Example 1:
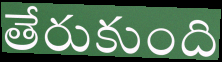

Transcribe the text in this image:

తేరుకుంది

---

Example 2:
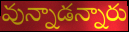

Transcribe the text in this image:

వున్నాడన్నారు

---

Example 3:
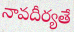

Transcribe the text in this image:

నావదీర్యతే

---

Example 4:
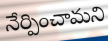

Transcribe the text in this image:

నేర్పించామని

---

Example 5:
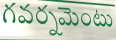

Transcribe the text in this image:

గవర్నమెంటు